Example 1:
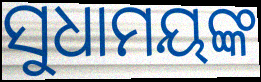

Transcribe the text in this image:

ସୁଧାମୟଙ୍କ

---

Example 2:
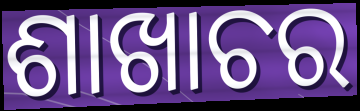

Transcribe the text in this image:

ଶାଖାଚର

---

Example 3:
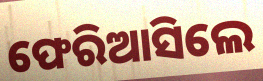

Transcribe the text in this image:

ଫେରିଆସିଲେ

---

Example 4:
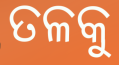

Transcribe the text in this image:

ତଳକୁ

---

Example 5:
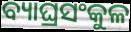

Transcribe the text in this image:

ବ୍ୟାଘ୍ରସଂକୁଳ